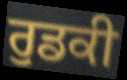
ਰੁਡਕੀ